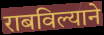
राबविल्याने